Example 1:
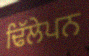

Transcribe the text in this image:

ਢਿੱਲੇਪਨ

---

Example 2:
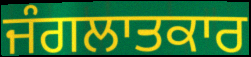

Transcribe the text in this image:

ਜੰਗਲਾਤਕਾਰ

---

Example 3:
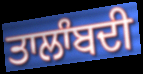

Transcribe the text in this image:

ਤਾਲਾੰਬਦੀ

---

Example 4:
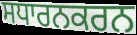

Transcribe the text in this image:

ਸਧਾਰਨਕਰਨ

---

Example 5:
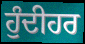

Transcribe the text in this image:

ਹੁੰਦੀਹਰ